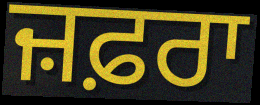
ਜ਼ਫ਼ਰਾ